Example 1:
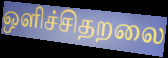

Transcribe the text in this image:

ஒளிச்சிதறலை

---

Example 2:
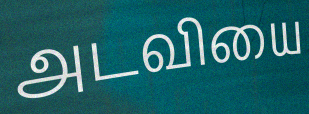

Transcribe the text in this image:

அடவியை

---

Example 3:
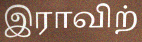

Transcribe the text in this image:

இராவிற்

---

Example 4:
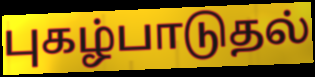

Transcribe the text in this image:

புகழ்பாடுதல்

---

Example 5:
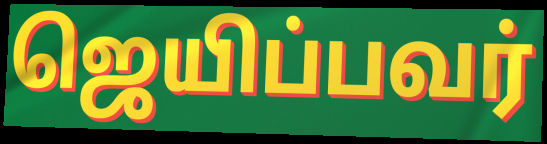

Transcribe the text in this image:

ஜெயிப்பவர்